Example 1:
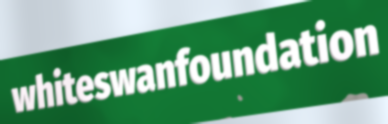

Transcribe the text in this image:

whiteswanfoundation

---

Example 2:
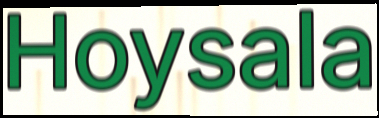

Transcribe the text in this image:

Hoysala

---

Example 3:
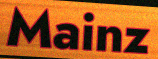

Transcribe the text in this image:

Mainz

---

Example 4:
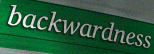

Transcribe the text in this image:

backwardness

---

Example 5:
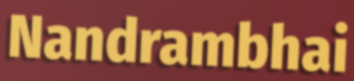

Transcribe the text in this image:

Nandrambhai